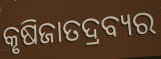
କୃଷିଜାତଦ୍ରବ୍ୟର